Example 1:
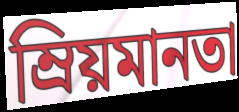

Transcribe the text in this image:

ম্রিয়মানতা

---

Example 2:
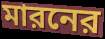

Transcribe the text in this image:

মারনের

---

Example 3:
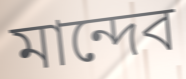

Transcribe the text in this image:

মান্দেব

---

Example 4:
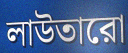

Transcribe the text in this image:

লাউতারো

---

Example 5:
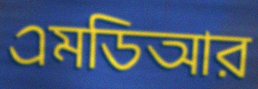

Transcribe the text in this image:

এমডিআর